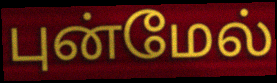
புன்மேல்